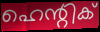
ഹെന്റിക്